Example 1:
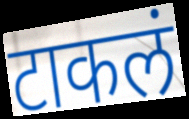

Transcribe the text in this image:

टाकलं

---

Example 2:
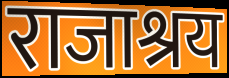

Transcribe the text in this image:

राजाश्रय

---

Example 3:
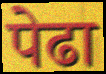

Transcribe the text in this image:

पेढा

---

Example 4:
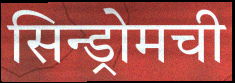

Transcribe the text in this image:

सिन्ड्रोमची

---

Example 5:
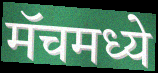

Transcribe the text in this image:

मॅचमध्ये